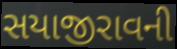
સયાજીરાવની